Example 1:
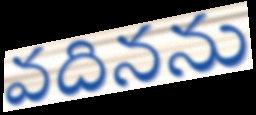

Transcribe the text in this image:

వదినను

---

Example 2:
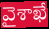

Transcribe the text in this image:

వైశాఖే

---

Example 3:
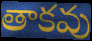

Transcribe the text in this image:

తాకవు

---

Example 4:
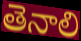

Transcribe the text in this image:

తెనాలి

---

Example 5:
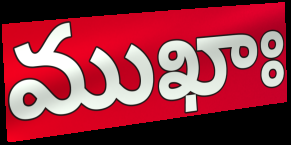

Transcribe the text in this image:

ముఖాః